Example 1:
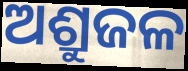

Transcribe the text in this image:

ଅଶ୍ରୁଜଳ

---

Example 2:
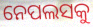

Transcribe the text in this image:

ନେପଲସକୁ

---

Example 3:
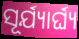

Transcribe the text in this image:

ସୂର୍ଯ୍ୟାର୍ଘ୍ୟ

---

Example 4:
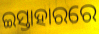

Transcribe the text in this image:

ଇସ୍ତାହାରରେ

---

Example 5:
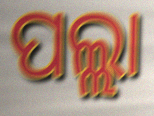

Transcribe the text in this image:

ପଲ୍ଲା